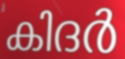
കിദർ